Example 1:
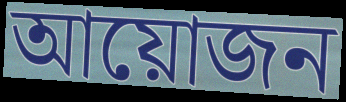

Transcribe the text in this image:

আয়োজন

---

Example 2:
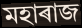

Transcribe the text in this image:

মহাৰাজ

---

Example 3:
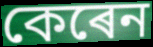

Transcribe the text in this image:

কেৰেন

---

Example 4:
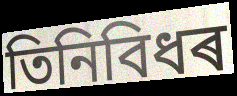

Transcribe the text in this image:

তিনিবিধৰ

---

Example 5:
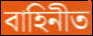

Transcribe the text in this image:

বাহিনীত